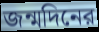
জন্মদিনের